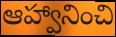
ఆహ్వానించి